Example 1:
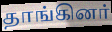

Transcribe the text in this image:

தாங்கினர்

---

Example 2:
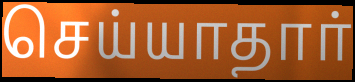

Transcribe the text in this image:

செய்யாதார்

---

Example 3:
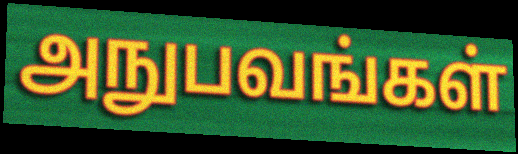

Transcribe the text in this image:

அநுபவங்கள்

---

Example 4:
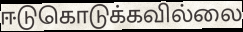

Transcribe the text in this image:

ஈடுகொடுக்கவில்லை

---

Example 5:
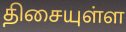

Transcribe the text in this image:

திசையுள்ள